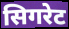
सिगरेट